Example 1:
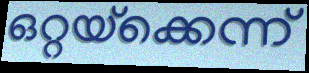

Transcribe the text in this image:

ഒറ്റയ്‌ക്കെന്ന്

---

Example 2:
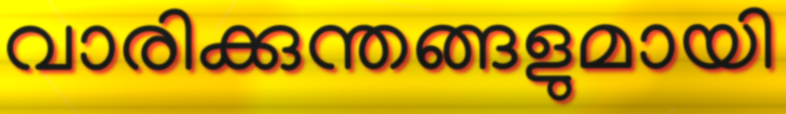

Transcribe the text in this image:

വാരിക്കുന്തങ്ങളുമായി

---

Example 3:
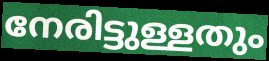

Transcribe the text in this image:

നേരിട്ടുള്ളതും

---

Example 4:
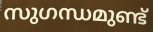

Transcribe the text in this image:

സുഗന്ധമുണ്ട്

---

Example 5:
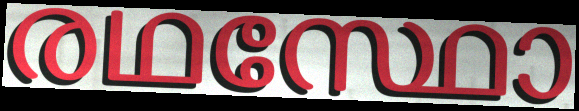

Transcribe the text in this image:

രഥസ്ഥോ